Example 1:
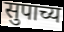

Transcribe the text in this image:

सुपाच्य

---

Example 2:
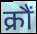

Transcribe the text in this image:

क्रौं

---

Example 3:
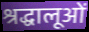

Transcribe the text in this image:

श्रद्धालूओं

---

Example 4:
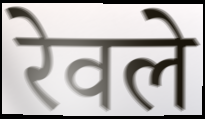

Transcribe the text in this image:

रेवले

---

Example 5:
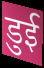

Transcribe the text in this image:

डुई